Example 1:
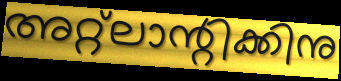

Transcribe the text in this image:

അറ്റ്ലാന്റിക്കിനു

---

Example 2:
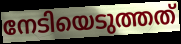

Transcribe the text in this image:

നേടിയെടുത്തത്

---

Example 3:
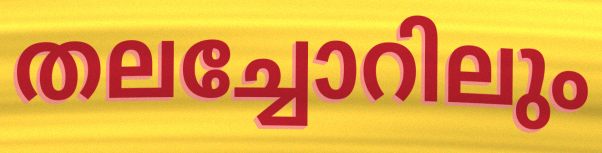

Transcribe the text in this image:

തലച്ചോറിലും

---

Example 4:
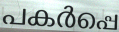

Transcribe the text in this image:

പകർപ്പെ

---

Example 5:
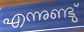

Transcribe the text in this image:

എന്നുണ്ടു്